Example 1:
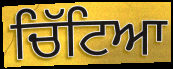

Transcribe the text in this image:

ਚਿੱਟਿਆ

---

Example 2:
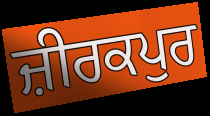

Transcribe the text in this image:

ਜ਼ੀਰਕਪੁਰ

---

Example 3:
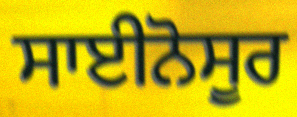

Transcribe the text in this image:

ਸਾਈਨੋਸੂਰ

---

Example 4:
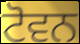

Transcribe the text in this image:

ਟੋਵਨ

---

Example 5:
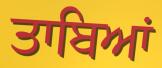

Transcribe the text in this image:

ਤਾਬਿਆਂ